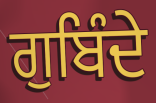
ਗੁਬਿੰਦੇ